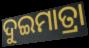
ଦୁଇମାତ୍ରା